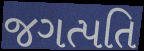
જગત્પતિ